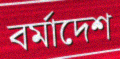
বর্মাদেশ